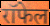
रॉफेल